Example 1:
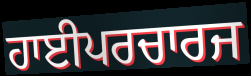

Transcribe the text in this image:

ਹਾਈਪਰਚਾਰਜ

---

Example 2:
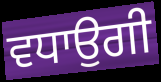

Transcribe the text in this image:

ਵਧਾਉਗੀ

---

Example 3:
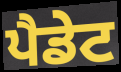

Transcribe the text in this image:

ਪੈਡੇਟ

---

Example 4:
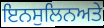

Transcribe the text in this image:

ਇਨਸੁਲਿਨਅਤੇ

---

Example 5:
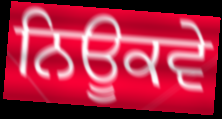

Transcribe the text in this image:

ਨਿਊਕਵੇ